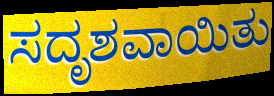
ಸದೃಶವಾಯಿತು